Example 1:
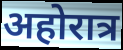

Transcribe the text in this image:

अहोरात्र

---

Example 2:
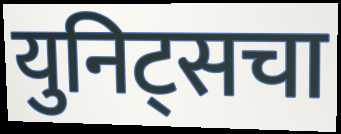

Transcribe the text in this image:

युनिट्सचा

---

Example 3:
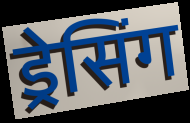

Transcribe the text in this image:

ड्रेसिंग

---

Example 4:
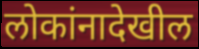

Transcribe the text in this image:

लोकांनादेखील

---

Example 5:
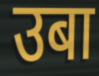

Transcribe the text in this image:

उबा